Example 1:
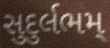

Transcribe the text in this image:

સુદુર્લભમ્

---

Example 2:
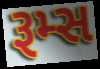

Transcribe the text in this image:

રૂમ્સ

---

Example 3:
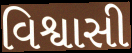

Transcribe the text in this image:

વિશ્વાસી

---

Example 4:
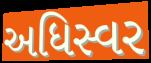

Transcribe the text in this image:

અધિસ્વર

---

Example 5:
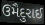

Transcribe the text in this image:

ઉમૈદુરાઈ